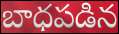
బాధపడిన